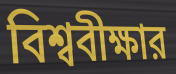
বিশ্ববীক্ষার